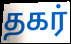
தகர்